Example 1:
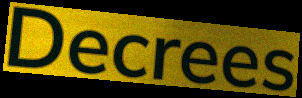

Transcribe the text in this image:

Decrees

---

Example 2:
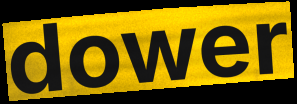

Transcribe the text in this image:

dower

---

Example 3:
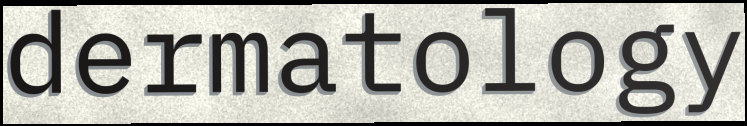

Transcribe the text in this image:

dermatology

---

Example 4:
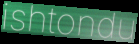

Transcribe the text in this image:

ishtondu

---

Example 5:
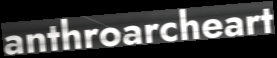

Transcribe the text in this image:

anthroarcheart